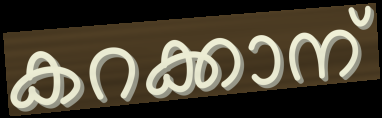
കറക്കാന്